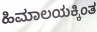
ಹಿಮಾಲಯಕ್ಕಿಂತ